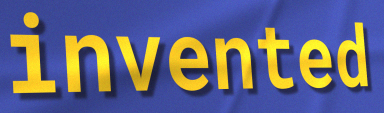
invented